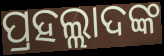
ପ୍ରହଲ୍ଲାଦଙ୍କ